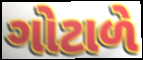
ગોટાળે